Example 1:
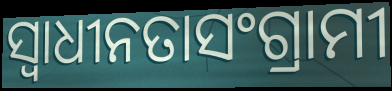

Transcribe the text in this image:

ସ୍ଵାଧୀନତାସଂଗ୍ରାମୀ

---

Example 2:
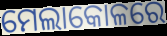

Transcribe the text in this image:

ମେଲାକୋଳରେ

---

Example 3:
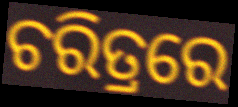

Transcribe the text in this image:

ଚରିତ୍ରରେ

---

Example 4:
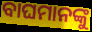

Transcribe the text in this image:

ବାଘମାନଙ୍କୁ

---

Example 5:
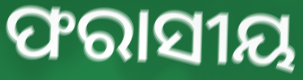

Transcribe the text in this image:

ଫରାସୀୟ